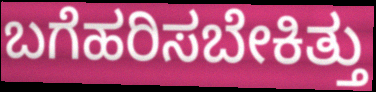
ಬಗೆಹರಿಸಬೇಕಿತ್ತು